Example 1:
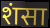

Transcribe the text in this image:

शंसा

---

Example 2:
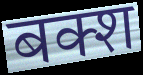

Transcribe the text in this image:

बक्श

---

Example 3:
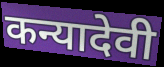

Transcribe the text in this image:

कन्यादेवी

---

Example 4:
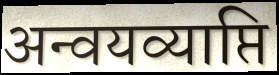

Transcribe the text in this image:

अन्वयव्याप्ति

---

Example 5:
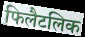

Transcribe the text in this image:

फिलैटलिक